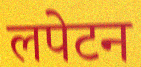
लपेटन